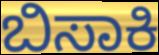
ಬಿಸಾಕಿ